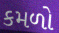
કમળો